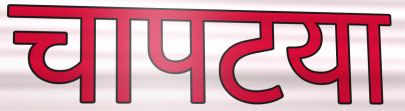
चापटया